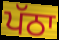
ਪੱਠਾ